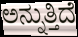
ಅನ್ನುತ್ತಿದೆ